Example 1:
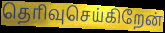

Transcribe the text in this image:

தெரிவுசெய்கிறேன்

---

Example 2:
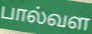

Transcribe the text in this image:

பால்வள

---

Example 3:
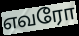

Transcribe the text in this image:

எவரோ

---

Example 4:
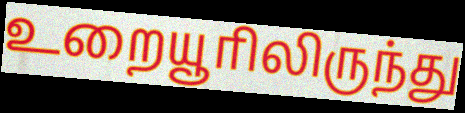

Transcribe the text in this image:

உறையூரிலிருந்து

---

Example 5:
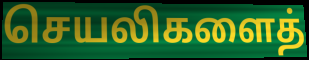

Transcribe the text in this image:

செயலிகளைத்